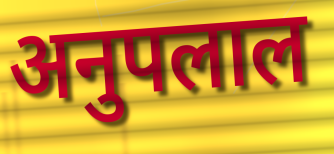
अनुपलाल